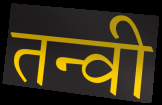
तन्वी